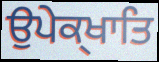
ਉਪੇਕ੍ਖਾਤਿ